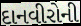
દાનવીરોની